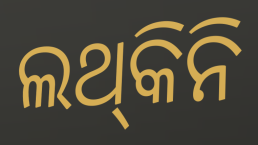
ଲଥ୍‍କିନି